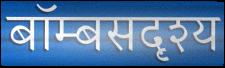
बॉम्बसदृश्य